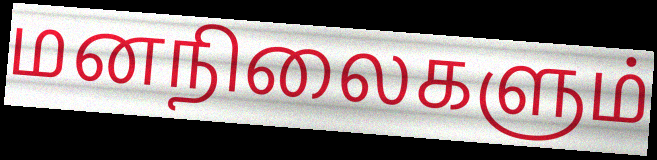
மனநிலைகளும்